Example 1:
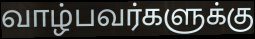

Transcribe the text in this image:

வாழ்பவர்களுக்கு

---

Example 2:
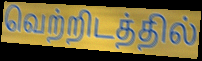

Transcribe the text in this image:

வெற்றிடத்தில்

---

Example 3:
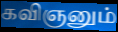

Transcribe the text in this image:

கவிஞனும்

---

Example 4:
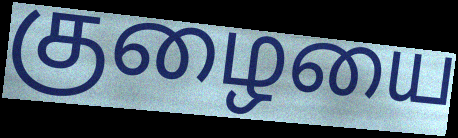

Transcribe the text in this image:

குழையை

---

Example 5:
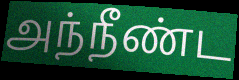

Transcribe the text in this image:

அந்நீண்ட